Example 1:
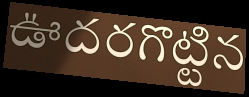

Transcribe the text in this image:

ఊదరగొట్టిన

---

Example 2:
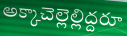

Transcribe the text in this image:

అక్కాచెల్లెల్లిద్దరూ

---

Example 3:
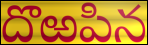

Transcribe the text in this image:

దొఱపిన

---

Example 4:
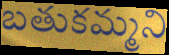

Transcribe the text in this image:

బతుకమ్మని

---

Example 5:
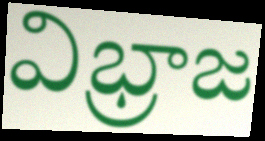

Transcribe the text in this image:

విభ్రాజ